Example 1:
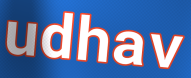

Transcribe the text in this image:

udhav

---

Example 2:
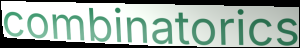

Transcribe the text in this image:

combinatorics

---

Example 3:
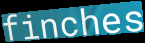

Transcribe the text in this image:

finches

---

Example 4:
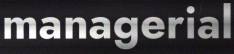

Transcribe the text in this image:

managerial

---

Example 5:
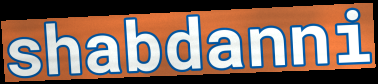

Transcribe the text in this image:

shabdanni